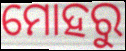
ମୋହରୁ